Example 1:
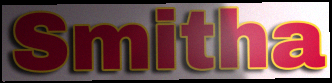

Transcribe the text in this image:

Smitha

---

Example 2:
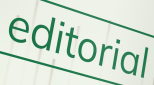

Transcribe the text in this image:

editorial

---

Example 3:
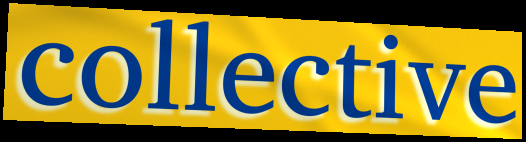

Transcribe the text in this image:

collective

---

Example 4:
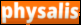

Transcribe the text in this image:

physalis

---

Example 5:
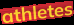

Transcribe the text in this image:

athletes